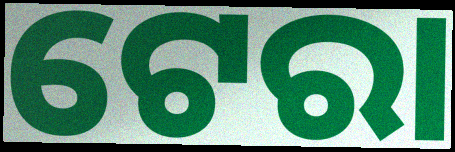
ଟେରା